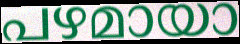
പഴമായാ